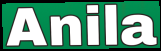
Anila